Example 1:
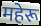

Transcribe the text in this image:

महेरू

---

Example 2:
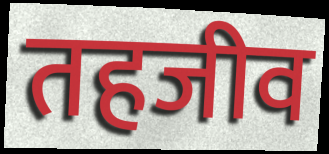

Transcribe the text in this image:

तहजीव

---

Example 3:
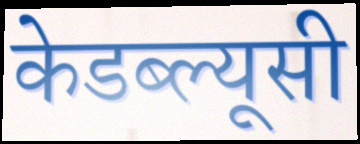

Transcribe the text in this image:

केडब्ल्यूसी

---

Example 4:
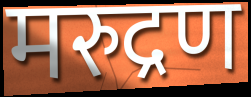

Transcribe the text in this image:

मरुद्रण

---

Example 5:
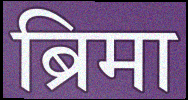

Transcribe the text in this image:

ब्रिमा